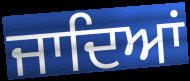
ਜਾਦਿਆਂ